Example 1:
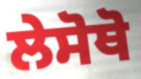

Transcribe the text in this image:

ਲੇਸੋਥੋ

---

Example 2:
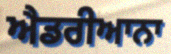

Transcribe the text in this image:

ਐਡਰੀਆਨਾ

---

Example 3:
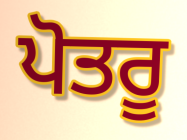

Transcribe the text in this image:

ਪੋਤਰੂ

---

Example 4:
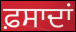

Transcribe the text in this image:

ਫ਼ਸਾਦਾਂ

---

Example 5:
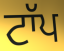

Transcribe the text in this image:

ਟਾੱਪ